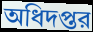
অধিদপ্তর